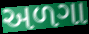
અળગા